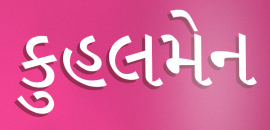
કુહલમેન